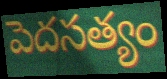
పెదసత్యం